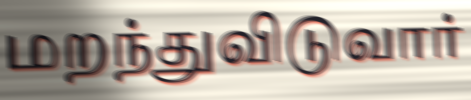
மறந்துவிடுவார்